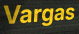
Vargas